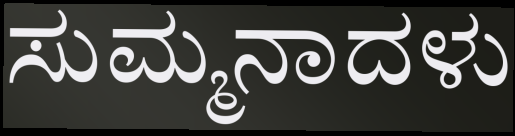
ಸುಮ್ಮನಾದಳು